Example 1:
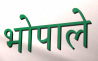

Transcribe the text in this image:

भोपाले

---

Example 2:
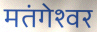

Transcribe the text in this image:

मतंगेश्वर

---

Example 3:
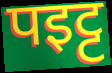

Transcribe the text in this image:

पइट्ट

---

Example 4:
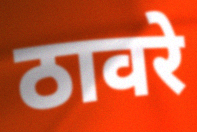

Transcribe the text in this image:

ठावरे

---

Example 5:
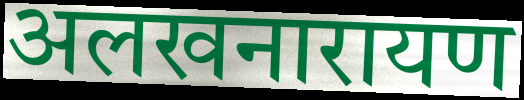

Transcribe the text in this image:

अलखनारायण